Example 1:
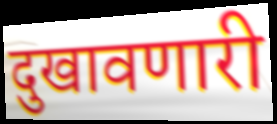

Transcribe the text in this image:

दुखावणारी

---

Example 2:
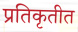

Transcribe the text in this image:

प्रतिकृतीत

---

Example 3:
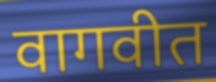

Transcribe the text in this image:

वागवीत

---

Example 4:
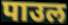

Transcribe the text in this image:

पाउल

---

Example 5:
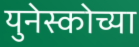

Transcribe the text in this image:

युनेस्कोच्या